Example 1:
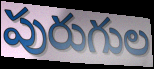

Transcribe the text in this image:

పురుగుల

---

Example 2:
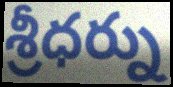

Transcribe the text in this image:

శ్రీధర్ను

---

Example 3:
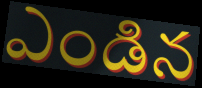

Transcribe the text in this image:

ఎండిన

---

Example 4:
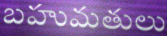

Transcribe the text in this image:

బహుమతులు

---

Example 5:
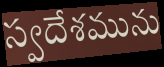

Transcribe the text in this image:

స్వదేశమును